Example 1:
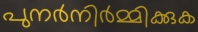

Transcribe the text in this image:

പുനർനിർമ്മിക്കുക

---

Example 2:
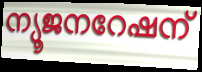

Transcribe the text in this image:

ന്യൂജനറേഷന്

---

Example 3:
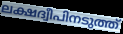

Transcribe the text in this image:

ലക്ഷദ്വീപിനടുത്ത്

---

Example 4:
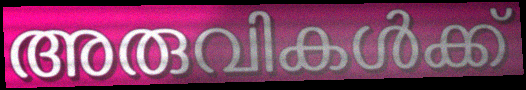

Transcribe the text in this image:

അരുവികൾക്ക്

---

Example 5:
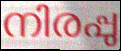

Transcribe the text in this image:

നിരപ്പു